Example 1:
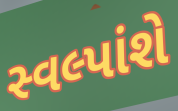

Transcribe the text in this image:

સ્વલ્પાંશે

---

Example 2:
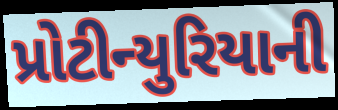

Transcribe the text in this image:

પ્રોટીન્યુરિયાની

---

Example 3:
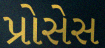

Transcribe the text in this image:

પ્રોસેસ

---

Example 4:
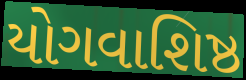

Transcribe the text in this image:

યોગવાશિષ્ઠ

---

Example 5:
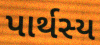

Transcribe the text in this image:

પાર્થસ્ય